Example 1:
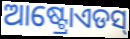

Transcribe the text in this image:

ଆଷ୍ଟ୍ରୋଏଡସ୍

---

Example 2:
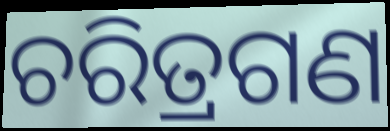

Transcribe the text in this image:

ଚରିତ୍ରଗଣ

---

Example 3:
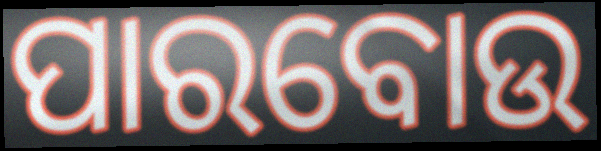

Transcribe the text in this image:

ପାରବୋଉ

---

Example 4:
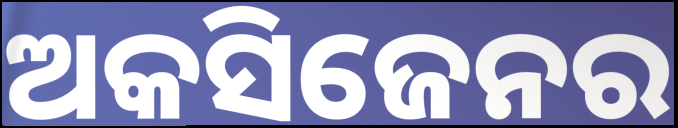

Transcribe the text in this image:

ଅକସିଜେନର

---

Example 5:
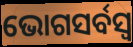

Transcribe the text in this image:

ଭୋଗସର୍ବସ୍ୱ